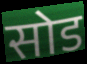
सोड